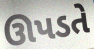
ઊપડતે